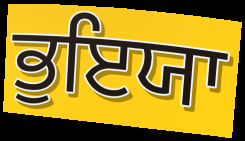
ਭੁਇਯਾ